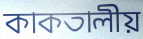
কাকতালীয়